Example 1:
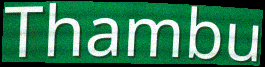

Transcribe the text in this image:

Thambu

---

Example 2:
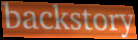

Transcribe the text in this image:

backstory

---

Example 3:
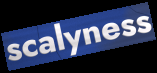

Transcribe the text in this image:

scalyness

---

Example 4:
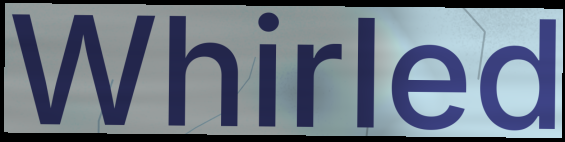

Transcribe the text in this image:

Whirled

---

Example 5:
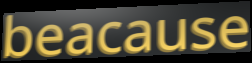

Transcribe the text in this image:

beacause